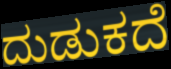
ದುಡುಕದೆ